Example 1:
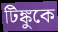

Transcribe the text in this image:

টিঙ্কুকে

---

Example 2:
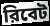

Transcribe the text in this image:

রিবেট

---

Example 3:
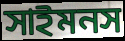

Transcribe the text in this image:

সাইমনস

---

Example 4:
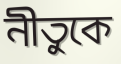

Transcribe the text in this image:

নীতুকে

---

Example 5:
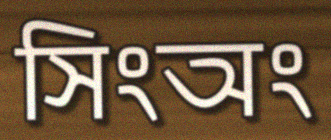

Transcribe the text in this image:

সিংঅং